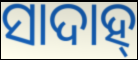
ସାଦାହ୍